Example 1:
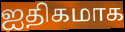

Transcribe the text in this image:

ஐதிகமாக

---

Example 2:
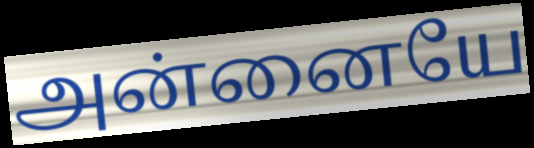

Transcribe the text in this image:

அன்னையே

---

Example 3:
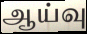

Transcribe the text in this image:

ஆய்வு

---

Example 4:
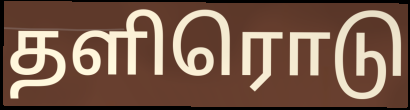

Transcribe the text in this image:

தளிரொடு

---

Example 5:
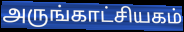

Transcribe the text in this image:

அருங்காட்சியகம்